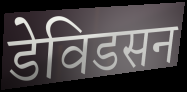
डेविडसन